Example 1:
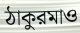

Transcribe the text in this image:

ঠাকুরমাও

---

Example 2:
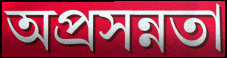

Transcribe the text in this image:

অপ্রসন্নতা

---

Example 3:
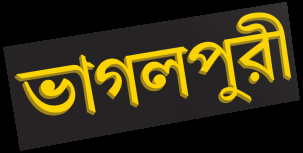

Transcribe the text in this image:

ভাগলপুরী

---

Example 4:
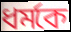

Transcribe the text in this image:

ধর্মকে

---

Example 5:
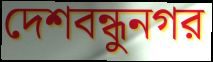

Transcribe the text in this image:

দেশবন্ধুনগর